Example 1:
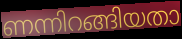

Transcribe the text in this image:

ണന്നിറങ്ങിയതാ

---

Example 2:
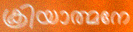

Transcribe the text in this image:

ക്രിയാത്മനേ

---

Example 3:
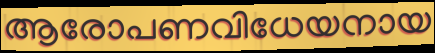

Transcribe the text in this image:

ആരോപണവിധേയനായ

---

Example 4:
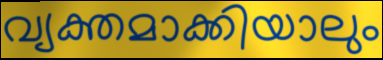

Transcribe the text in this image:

വ്യക്തമാക്കിയാലും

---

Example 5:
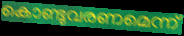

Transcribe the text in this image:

കൊണ്ടുവരണമെന്ന്